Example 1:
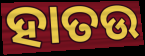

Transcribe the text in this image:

ହାତଉ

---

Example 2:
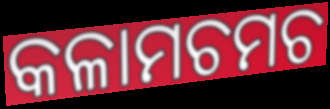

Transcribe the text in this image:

କଳାମଚମଚ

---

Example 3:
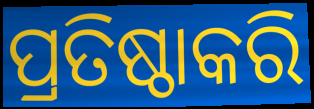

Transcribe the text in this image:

ପ୍ରତିଷ୍ଠାକରି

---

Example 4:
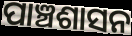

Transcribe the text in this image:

ପାଞ୍ଚଶାସନ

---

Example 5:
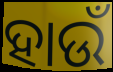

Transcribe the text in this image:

ହାଉଁ